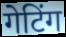
गेटिंग